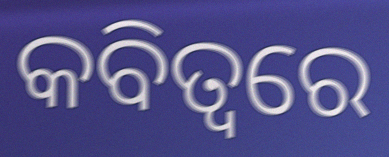
କବିତ୍ୱରେ